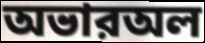
অভারঅল